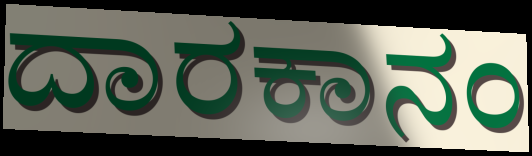
ದಾರಕಾನಂ